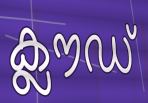
ക്ലൗഡ്